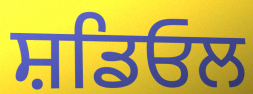
ਸ਼ਡਿਓਲ